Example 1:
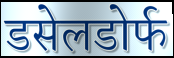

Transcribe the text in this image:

डसेलडोर्फ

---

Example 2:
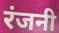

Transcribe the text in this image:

रंजनी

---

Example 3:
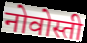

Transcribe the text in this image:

नोवोस्ती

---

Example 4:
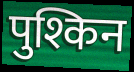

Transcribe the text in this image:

पुश्किन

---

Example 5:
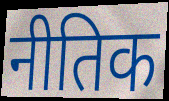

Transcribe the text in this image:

नीतिक